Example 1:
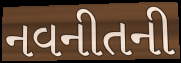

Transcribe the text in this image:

નવનીતની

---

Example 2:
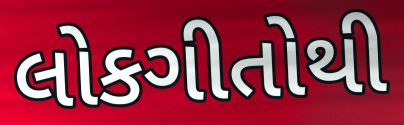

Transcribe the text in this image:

લોકગીતોથી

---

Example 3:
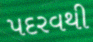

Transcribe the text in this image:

પદરવથી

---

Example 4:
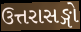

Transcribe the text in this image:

ઉત્તરાસઙ્ગો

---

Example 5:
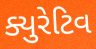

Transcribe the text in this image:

ક્યુરેટિવ